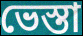
ভেস্তা